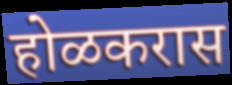
होळकरास